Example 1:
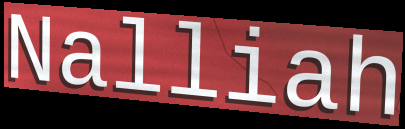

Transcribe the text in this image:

Nalliah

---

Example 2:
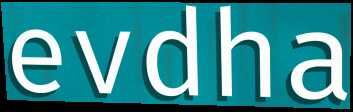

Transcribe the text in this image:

evdha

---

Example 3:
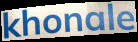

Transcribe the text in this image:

khonale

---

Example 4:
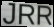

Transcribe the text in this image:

JRR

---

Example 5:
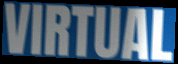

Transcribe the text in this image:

VIRTUAL